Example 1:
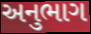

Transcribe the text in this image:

અનુભાગ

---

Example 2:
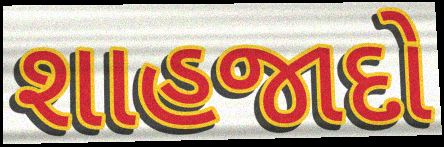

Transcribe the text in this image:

શાહજાદો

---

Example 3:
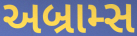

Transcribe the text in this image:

અબ્રામ્સ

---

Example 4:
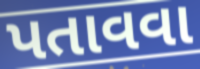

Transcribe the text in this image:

પતાવવા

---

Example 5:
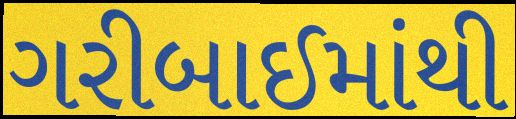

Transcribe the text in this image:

ગરીબાઈમાંથી